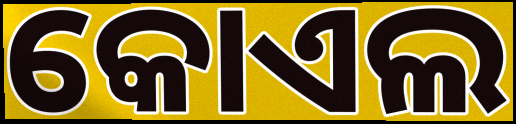
କୋଏଲ